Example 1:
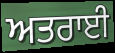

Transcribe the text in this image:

ਅਤਰਾਈ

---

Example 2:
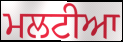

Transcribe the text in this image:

ਮਲਟੀਆ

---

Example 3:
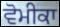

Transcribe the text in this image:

ਵੋਮੀਕਾ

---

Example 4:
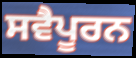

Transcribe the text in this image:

ਸਵੈਪੂਰਨ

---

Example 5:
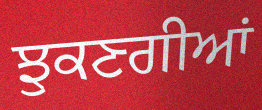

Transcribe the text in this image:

ਝੁਕਣਗੀਆਂ